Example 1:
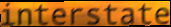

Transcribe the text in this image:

interstate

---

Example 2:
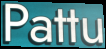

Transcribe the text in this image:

Pattu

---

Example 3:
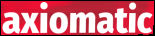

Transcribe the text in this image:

axiomatic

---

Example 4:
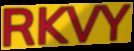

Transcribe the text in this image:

RKVY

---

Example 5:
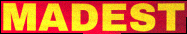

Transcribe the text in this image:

MADEST